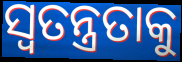
ସ୍ୱତନ୍ତ୍ରତାକୁ